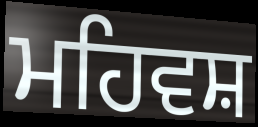
ਮਹਿਵਸ਼